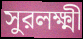
সুরলক্ষ্মী